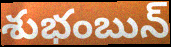
శుభంబున్